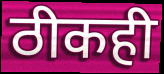
ठीकही